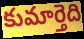
కుమార్తెది